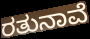
ರತುನಾವೆ